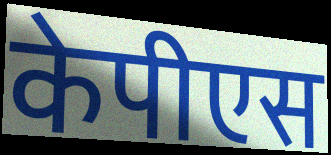
केपीएस